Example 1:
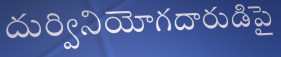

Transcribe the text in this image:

దుర్వినియోగదారుడిపై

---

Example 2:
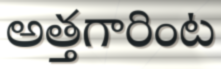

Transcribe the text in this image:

అత్తగారింట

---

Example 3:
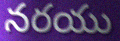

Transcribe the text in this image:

నరయు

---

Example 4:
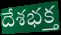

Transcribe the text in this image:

దేశభక్త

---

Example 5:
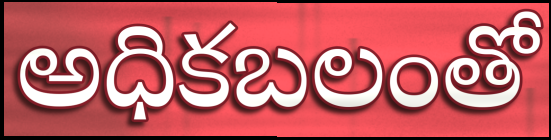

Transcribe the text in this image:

అధికబలంతో